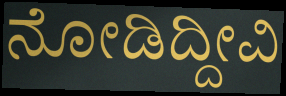
ನೋಡಿದ್ದೀವಿ